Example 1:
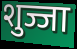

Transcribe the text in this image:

शुज्जा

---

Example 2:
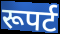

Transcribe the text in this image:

रूपर्ट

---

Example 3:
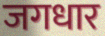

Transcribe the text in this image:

जगधार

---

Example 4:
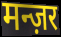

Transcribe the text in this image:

मन्ज़र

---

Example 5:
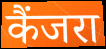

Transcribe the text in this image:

कैंजरा